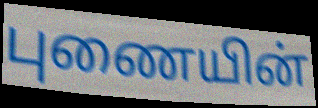
புணையின்